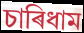
চাৰিধাম